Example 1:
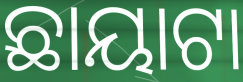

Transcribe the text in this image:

ଛାୟାଟା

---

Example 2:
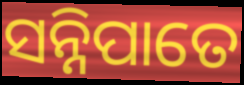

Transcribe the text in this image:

ସନ୍ନିପାତେ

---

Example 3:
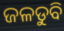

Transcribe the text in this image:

ଜଳଡୁବି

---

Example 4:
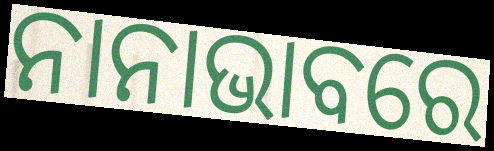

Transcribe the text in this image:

ନାନାଭାବରେ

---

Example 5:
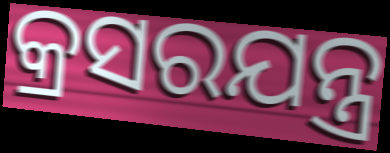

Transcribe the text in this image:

କ୍ରସରଯନ୍ତ୍ର